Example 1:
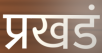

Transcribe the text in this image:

प्रखडं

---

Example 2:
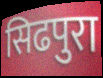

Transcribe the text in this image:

सिढपुरा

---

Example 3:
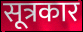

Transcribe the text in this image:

सूत्रकार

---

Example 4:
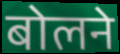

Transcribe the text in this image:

बोलने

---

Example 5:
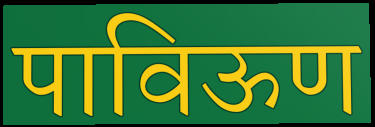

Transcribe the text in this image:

पाविऊण